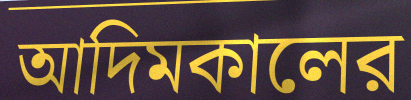
আদিমকালের